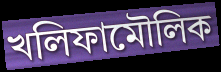
খলিফামৌলিক